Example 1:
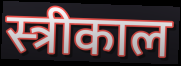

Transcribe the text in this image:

स्त्रीकाल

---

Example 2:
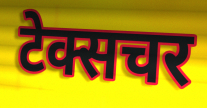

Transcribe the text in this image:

टेक्सचर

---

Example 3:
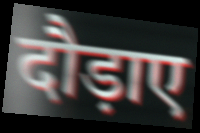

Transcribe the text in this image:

दौड़ाए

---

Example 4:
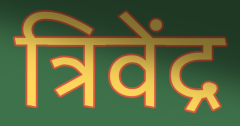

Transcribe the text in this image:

त्रिवेंद्र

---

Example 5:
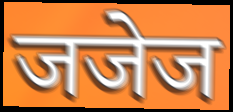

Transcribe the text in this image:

जजेज